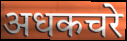
अधकचरे